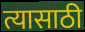
त्यासाठी